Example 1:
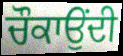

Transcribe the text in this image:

ਚੌਕਾਉਂਦੀ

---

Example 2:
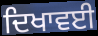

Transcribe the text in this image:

ਦਿਖਾਵਈ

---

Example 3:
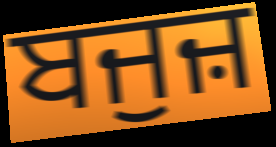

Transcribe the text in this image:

ਬਜੁਜ਼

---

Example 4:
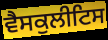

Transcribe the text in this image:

ਵੈਸਕੁਲੀਟਿਸ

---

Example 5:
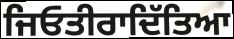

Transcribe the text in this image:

ਜਿਓਤੀਰਾਦਿੱਤਿਆ